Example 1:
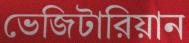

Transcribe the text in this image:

ভেজিটারিয়ান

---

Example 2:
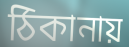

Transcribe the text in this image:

ঠিকানায়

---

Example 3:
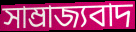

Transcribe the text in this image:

সাম্রাজ্যবাদ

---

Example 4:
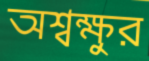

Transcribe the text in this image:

অশ্বক্ষুর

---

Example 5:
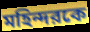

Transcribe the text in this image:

মহিন্দরকে